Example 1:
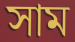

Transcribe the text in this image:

সাম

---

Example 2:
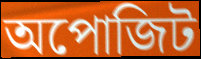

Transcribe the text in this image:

অপোজিট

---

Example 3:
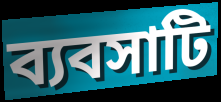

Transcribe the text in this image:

ব্যবসাটি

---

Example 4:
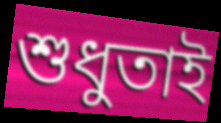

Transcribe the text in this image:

শুধুতাই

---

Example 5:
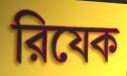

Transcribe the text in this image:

রিযেক